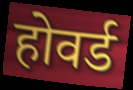
होवर्ड